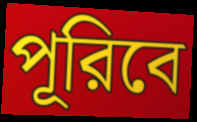
পূরিবে